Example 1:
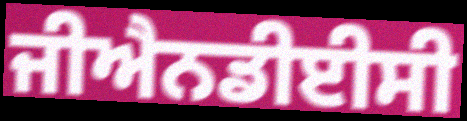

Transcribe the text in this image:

ਜੀਐਨਡੀਈਸੀ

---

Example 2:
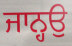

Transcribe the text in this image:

ਜਾਨ੍ਹਉ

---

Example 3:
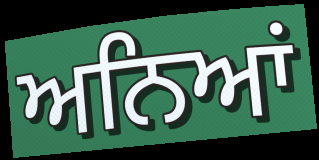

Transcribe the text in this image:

ਅਨਿਆਂ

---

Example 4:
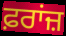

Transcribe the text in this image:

ਫ਼ਰਾਂਜ਼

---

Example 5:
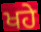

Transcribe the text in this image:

ਖਹੇ